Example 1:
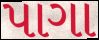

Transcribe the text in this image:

પાગા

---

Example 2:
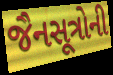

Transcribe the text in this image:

જૈનસૂત્રોની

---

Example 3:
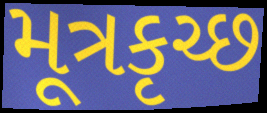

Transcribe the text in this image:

મૂત્રકૃચ્છ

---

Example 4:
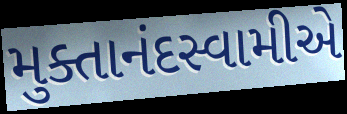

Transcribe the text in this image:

મુક્તાનંદસ્વામીએ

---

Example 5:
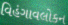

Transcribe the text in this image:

વિહંગાવલોકન